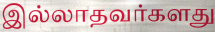
இல்லாதவர்களது